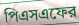
পিএসএফের